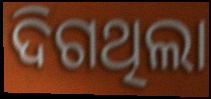
ଦିଗଥିଲା